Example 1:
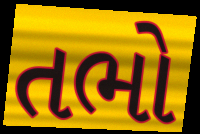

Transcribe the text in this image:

તભો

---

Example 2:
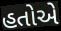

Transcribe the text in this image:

હતોએ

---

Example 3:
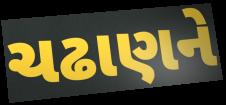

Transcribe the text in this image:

ચઢાણને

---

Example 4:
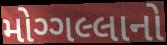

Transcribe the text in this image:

મોગ્ગલ્લાનો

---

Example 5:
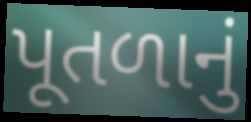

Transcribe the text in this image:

પૂતળાનું